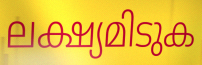
ലക്ഷ്യമിടുക